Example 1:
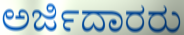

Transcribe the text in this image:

ಅರ್ಜಿದಾರರು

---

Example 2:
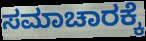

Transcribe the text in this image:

ಸಮಾಚಾರಕ್ಕೆ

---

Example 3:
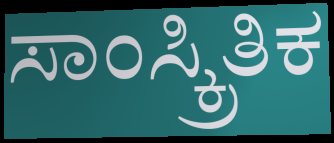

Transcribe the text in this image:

ಸಾಂಸ್ಕ್ರಿತಿಕ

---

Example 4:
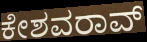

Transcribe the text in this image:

ಕೇಶವರಾವ್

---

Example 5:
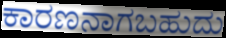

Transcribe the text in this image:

ಕಾರಣನಾಗಬಹುದು